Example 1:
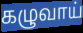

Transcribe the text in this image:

கழுவாய்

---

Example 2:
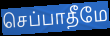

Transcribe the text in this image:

செப்பாதீமே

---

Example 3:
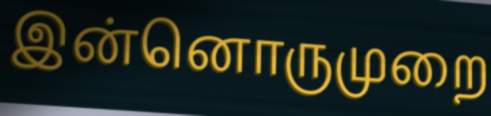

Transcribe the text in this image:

இன்னொருமுறை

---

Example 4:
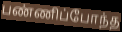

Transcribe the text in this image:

பண்ணிப்போந்த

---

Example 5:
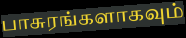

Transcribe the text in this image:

பாசுரங்களாகவும்